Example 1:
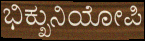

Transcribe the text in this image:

ಭಿಕ್ಖುನಿಯೋಪಿ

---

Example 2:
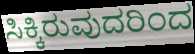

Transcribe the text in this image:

ಸಿಕ್ಕಿರುವುದರಿಂದ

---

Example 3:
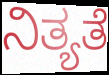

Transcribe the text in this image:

ನಿತ್ಯತೆ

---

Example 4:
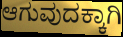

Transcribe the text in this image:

ಆಗುವುದಕ್ಕಾಗಿ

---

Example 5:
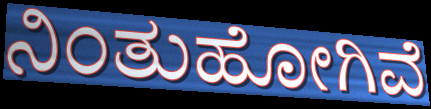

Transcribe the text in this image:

ನಿಂತುಹೋಗಿವೆ